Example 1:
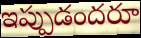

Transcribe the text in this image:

ఇప్పుడందరూ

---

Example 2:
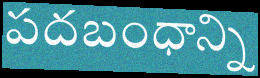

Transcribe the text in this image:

పదబంధాన్ని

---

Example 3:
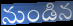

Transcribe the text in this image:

నుండిన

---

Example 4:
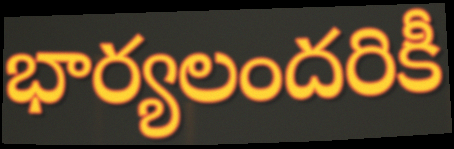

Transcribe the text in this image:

భార్యలందరికీ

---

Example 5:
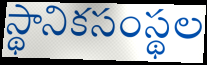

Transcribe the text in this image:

స్థానికసంస్థల